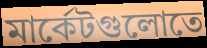
মার্কেটগুলোতে